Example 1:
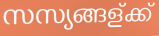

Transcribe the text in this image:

സസ്യങ്ങള്ക്ക്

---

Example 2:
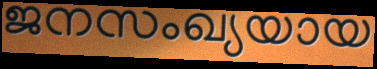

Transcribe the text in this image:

ജനസംഖ്യയായ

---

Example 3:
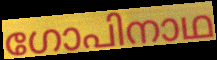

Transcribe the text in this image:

ഗോപിനാഥ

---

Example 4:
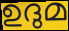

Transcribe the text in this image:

ഉദുമ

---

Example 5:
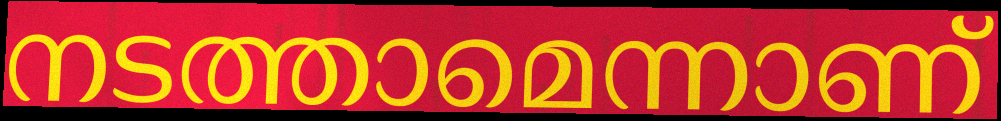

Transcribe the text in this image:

നടത്താമെന്നാണ്